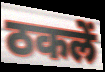
ठकलें